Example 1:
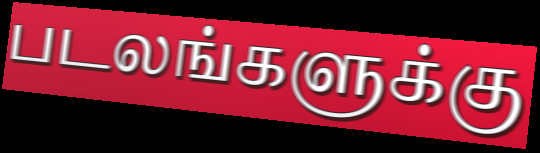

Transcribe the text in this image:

படலங்களுக்கு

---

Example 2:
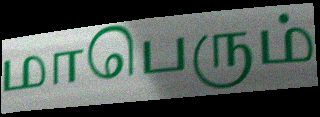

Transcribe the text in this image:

மாபெரும்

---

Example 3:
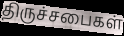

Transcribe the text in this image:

திருச்சபைகள்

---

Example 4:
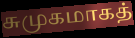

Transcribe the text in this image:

சுமுகமாகத்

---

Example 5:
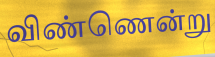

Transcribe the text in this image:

விண்ணென்று